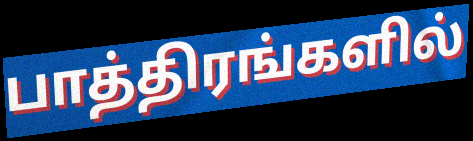
பாத்திரங்களில்